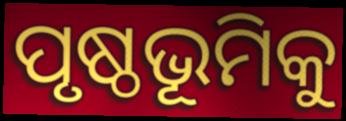
ପୃଷ୍ଠଭୂମିକୁ